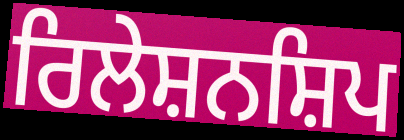
ਰਿਲੇਸ਼ਨਸ਼ਿਪ